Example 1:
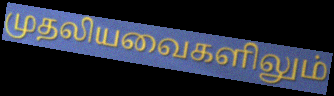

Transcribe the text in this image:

முதலியவைகளிலும்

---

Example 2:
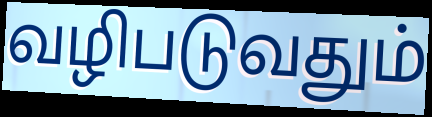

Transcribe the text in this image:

வழிபடுவதும்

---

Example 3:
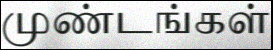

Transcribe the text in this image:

முண்டங்கள்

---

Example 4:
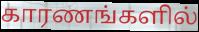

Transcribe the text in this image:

காரணங்களில்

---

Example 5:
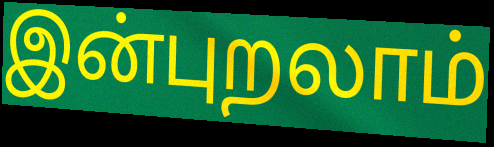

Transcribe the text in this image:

இன்புறலாம்